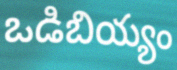
ఒడిబియ్యం